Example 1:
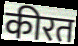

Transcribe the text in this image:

कीरत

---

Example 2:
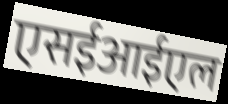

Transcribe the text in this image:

एसईआईएल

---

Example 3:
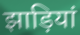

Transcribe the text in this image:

झाड़ियां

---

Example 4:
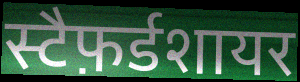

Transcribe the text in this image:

स्टैफ़र्डशायर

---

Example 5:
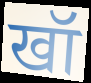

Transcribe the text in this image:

खॉ